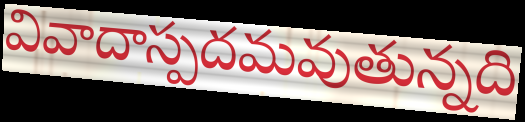
వివాదాస్పదమవుతున్నది